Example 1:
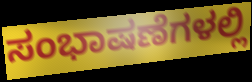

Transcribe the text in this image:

ಸಂಭಾಷಣೆಗಳಲ್ಲಿ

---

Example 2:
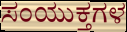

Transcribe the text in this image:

ಸಂಯುಕ್ತಗಳ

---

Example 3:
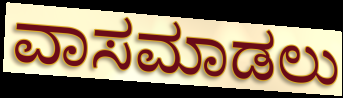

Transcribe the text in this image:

ವಾಸಮಾಡಲು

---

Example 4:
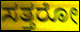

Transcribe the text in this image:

ಸತ್ತರೋ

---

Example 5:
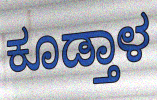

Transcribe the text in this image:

ಕೂಡ್ತಾಳ